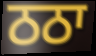
ਠਠਾ